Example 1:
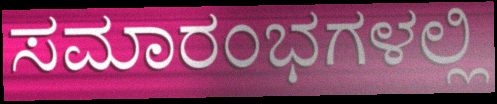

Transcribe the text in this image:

ಸಮಾರಂಭಗಳಲ್ಲಿ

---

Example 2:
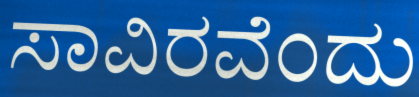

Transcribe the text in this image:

ಸಾವಿರವೆಂದು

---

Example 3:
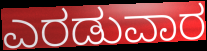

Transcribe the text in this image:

ಎರಡುವಾರ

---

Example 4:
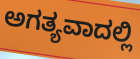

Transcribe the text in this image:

ಅಗತ್ಯವಾದಲ್ಲಿ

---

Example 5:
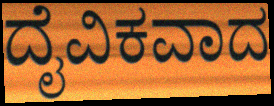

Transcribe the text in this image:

ದೈವಿಕವಾದ